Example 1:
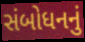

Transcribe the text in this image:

સંબોધનનું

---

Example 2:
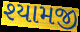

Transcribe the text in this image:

શ્યામજી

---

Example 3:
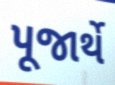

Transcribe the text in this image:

પૂજાર્થે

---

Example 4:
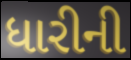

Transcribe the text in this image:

ધારીની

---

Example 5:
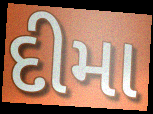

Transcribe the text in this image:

દીમા